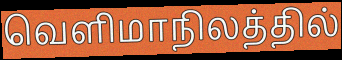
வெளிமாநிலத்தில்